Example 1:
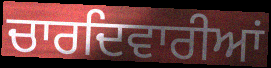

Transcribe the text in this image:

ਚਾਰਦਿਵਾਰੀਆਂ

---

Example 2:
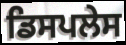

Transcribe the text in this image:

ਡਿਸਪਲੇਸ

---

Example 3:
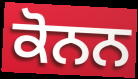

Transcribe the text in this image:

ਕੋਨਨ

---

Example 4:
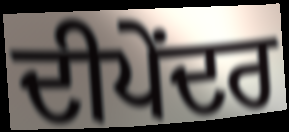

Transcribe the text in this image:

ਦੀਪੇਂਦਰ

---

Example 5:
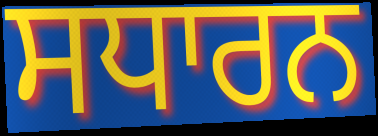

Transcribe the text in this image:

ਸਧਾਰਨ